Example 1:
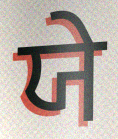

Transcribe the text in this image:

ਯੇ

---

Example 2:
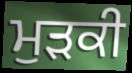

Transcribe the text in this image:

ਮੁੜਕੀ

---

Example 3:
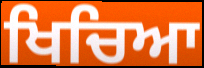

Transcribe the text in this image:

ਖਿਚਿਆ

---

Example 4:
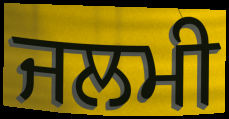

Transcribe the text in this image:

ਜਲਮੀ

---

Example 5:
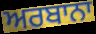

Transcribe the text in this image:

ਅਰਬਾਨਾ